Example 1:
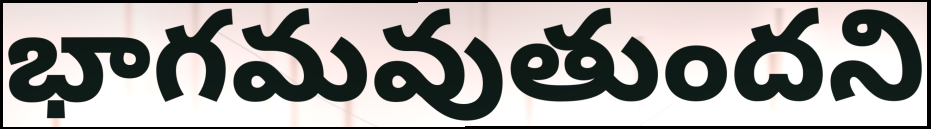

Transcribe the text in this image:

భాగమవుతుందని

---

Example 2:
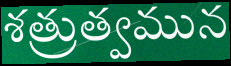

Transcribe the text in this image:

శత్రుత్వమున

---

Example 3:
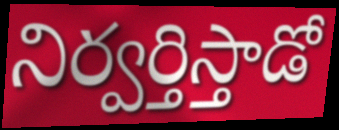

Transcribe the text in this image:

నిర్వర్తిస్తాడో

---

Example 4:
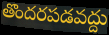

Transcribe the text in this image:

తొందరపడవద్దు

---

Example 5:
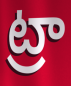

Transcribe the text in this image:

ట్రా